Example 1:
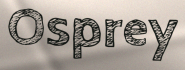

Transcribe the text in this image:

Osprey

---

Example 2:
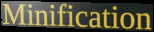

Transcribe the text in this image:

Minification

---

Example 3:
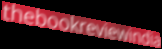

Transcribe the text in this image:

thebookreviewindia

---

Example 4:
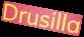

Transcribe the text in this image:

Drusilla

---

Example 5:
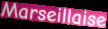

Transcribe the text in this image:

Marseillaise